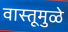
वास्तूमुळे